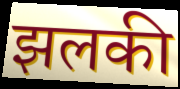
झलकी